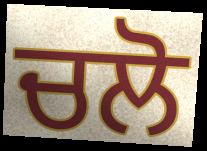
ਚਲੋ